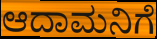
ಆದಾಮನಿಗೆ